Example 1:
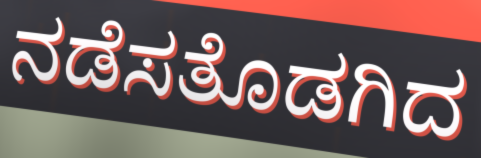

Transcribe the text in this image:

ನಡೆಸತೊಡಗಿದ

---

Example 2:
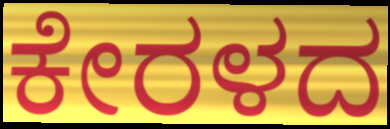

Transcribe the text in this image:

ಕೇರಳದ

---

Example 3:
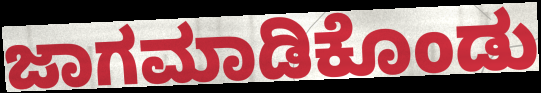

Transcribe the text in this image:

ಜಾಗಮಾಡಿಕೊಂಡು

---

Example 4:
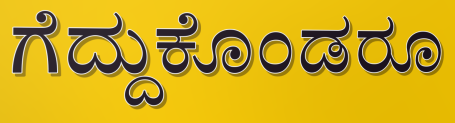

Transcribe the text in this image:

ಗೆದ್ದುಕೊಂಡರೂ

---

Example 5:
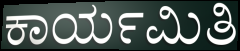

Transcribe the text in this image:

ಕಾರ್ಯಮಿತಿ